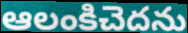
ఆలంకిచెదను